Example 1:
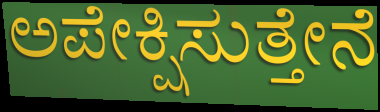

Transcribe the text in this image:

ಅಪೇಕ್ಷಿಸುತ್ತೇನೆ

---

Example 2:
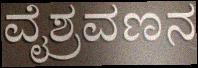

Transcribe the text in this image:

ವೈಶ್ರವಣನ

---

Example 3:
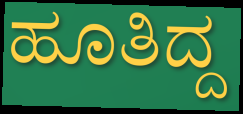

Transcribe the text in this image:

ಹೂತಿದ್ದ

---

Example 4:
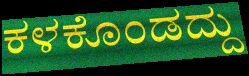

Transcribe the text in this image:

ಕಳಕೊಂಡದ್ದು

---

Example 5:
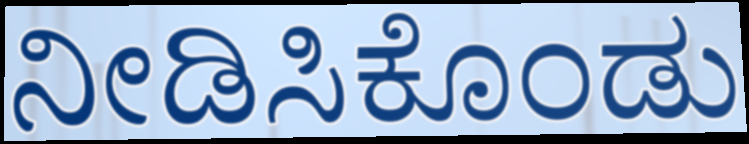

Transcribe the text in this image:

ನೀಡಿಸಿಕೊಂಡು